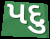
પદુ